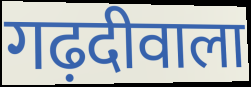
गढ़दीवाला